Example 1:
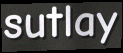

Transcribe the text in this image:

sutlay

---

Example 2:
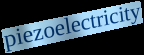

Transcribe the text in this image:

piezoelectricity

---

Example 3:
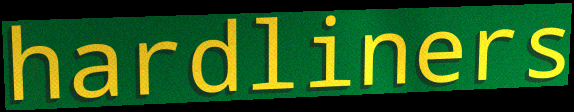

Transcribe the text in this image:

hardliners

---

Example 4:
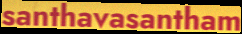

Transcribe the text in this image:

santhavasantham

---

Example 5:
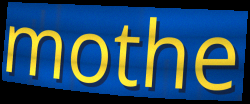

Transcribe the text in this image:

mothe